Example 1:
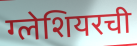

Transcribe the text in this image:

ग्लेशियरची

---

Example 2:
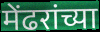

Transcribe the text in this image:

मेंढरांच्या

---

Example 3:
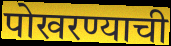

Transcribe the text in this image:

पोखरण्याची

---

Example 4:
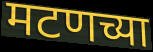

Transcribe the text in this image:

मटणच्या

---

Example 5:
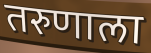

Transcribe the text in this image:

तरुणाला